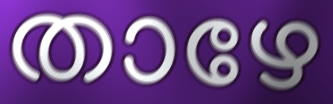
താഴേ